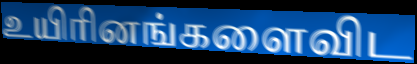
உயிரினங்களைவிட